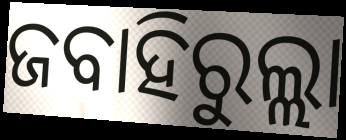
ଜବାହିରୁଲ୍ଲା